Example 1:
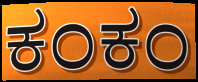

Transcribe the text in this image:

ಕಂಕಂ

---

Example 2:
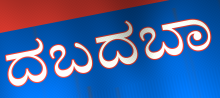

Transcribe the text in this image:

ದಬದಬಾ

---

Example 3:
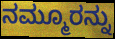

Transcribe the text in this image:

ನಮ್ಮೂರನ್ನು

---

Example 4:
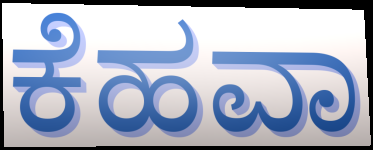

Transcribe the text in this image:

ಕೆಹವಾ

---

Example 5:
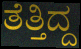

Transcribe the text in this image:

ತೆತ್ತಿದ್ದ